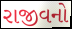
રાજીવનો